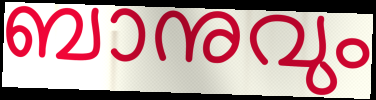
ബാനുവും